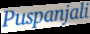
Puspanjali